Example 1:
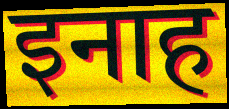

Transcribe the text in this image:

इनाह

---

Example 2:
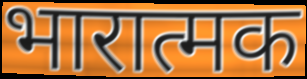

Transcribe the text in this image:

भारात्मक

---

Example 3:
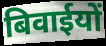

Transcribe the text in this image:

बिवाईयों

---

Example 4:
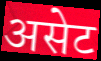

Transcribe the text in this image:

असेट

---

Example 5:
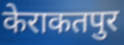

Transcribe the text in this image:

केराकतपुर